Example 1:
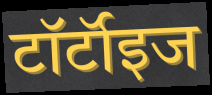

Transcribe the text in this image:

टॉर्टॉइज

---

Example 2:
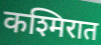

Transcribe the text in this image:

कश्मिरात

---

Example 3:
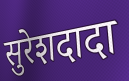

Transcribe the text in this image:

सुरेशदादा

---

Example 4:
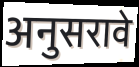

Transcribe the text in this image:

अनुसरावे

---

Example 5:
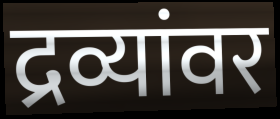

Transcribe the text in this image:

द्रव्यांवर